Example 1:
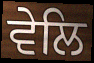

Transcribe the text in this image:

ਵੇਲਿ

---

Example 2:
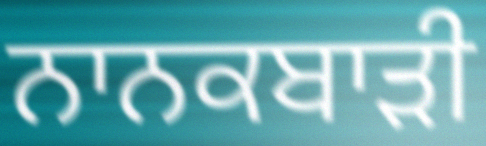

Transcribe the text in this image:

ਨਾਨਕਬਾੜੀ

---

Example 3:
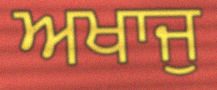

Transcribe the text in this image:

ਅਖਾਜੁ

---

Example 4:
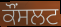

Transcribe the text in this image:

ਕੌਂਸਲਟ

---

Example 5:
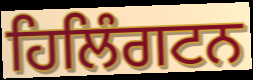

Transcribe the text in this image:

ਹਿਲਿੰਗਟਨ